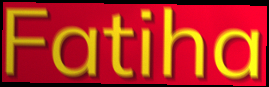
Fatiha